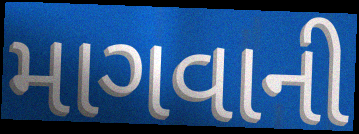
માગવાની